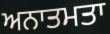
ਅਨਾਤਮਤਾ